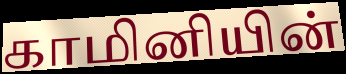
காமினியின்